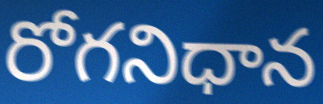
రోగనిధాన